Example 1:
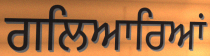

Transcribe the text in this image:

ਗਲਿਆਰਿਆਂ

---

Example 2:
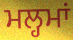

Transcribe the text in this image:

ਮਲ੍ਹਮਾਂ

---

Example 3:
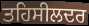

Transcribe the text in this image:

ਤਹਿਸੀਲਦਰ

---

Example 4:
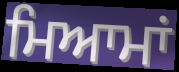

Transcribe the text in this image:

ਮਿਆਮਾਂ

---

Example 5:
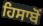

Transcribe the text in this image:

ਹਿਸਾਬੋਂ